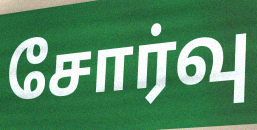
சோர்வு